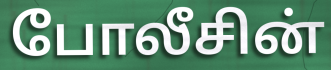
போலீசின்